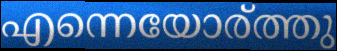
എന്നെയോര്ത്തു